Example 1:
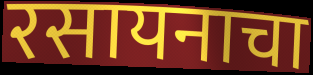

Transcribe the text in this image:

रसायनाचा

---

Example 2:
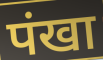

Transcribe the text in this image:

पंखा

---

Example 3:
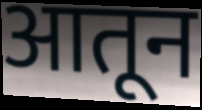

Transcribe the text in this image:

आतून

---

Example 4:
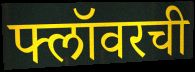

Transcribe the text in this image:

फ्लॉवरची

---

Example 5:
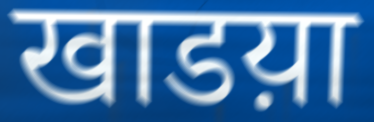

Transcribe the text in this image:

खाडय़ा